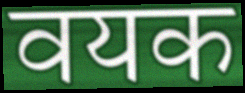
वयक